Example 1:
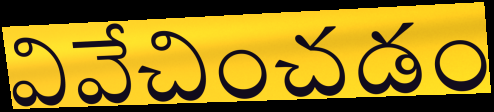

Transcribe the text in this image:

వివేచించడం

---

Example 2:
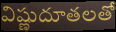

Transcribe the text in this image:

విష్ణుదూతలతో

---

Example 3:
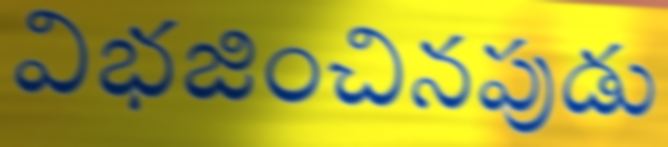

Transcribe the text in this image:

విభజించినపుడు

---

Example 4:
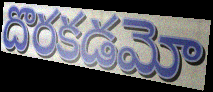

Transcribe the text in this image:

దొరకడమో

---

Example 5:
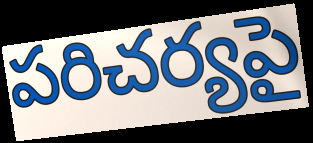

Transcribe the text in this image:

పరిచర్యపై